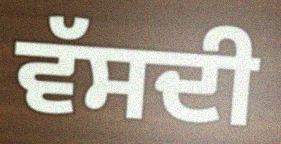
ਵੱਸਦੀ